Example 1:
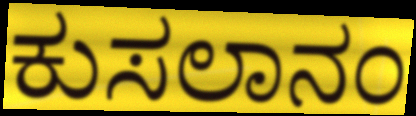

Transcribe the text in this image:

ಕುಸಲಾನಂ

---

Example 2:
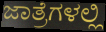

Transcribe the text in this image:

ಜಾತ್ರೆಗಳಲ್ಲಿ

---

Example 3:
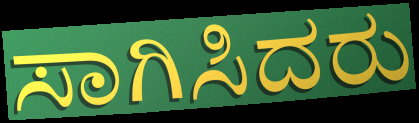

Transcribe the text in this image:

ಸಾಗಿಸಿದರು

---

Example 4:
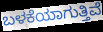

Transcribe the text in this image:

ಬಳಕೆಯಾಗುತ್ತಿವೆ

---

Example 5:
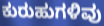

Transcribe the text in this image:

ಕುರುಹುಗಳಿವು